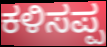
ಕಳಿಸಪ್ಪ